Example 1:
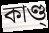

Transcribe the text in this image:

কাণ্ড্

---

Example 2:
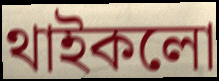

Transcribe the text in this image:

থাইকলো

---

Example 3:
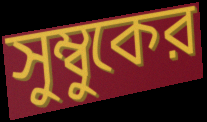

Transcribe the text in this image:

সুম্বুকের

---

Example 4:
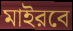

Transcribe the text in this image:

মাইরবে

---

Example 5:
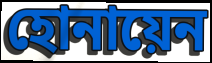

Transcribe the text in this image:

হোনায়েন